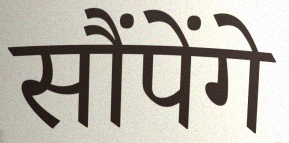
सौंपेंगे